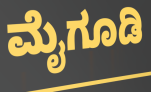
ಮೈಗೂಡಿ